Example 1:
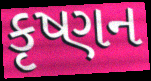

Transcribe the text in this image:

કૃષ્ણન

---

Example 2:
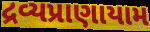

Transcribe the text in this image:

દ્રવ્યપ્રાણાયામ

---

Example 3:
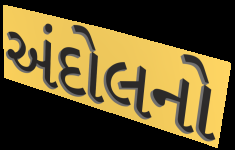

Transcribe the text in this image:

અંદોલનો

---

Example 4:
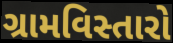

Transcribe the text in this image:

ગ્રામવિસ્તારો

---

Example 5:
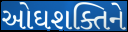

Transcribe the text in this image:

ઓઘશક્તિને